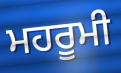
ਮਹਰੂਮੀ